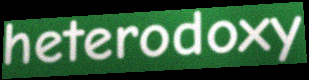
heterodoxy